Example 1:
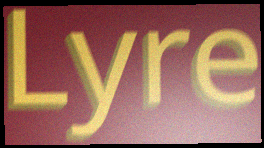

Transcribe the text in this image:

Lyre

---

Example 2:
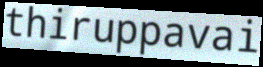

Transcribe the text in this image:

thiruppavai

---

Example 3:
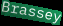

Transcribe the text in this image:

Brassey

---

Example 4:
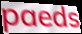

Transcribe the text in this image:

paeds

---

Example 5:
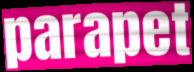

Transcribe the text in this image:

parapet